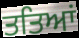
ਤਤਿਆਂ